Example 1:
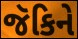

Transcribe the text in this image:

જૅકિને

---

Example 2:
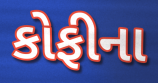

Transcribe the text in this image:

કોફીના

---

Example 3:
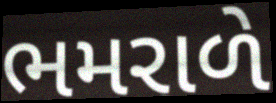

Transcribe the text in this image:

ભમરાળે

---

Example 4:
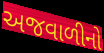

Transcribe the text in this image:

અજવાળીનો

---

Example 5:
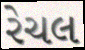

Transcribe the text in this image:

રેચલ